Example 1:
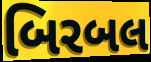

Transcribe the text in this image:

બિરબલ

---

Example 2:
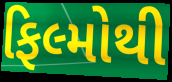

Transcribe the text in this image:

ફિલ્મોથી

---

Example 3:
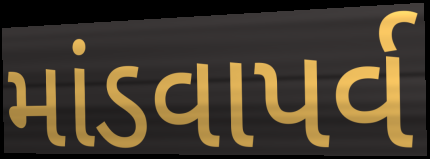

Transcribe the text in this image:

માંડવાપર્વ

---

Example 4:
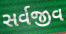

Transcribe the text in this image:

સર્વજીવ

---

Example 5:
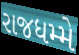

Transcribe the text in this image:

રાજધમ્મે